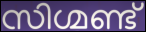
സിഗ്മണ്ട്